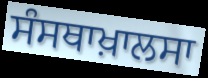
ਸੰਸਥਾਖ਼ਾਲਸਾ